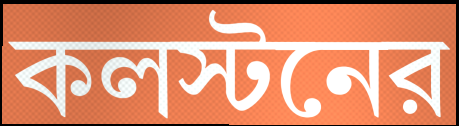
কলস্টনের